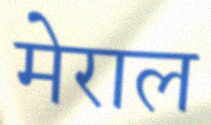
मेराल